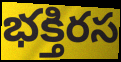
భక్తిరస